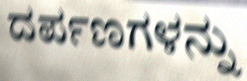
ದರ್ಪಣಗಳನ್ನು